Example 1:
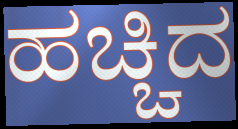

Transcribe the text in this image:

ಹಚ್ಚಿದ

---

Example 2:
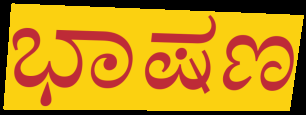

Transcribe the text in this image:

ಭಾಷಣ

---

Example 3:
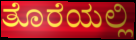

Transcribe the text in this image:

ತೊರೆಯಲ್ಲಿ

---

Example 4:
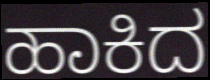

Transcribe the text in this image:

ಹಾಕಿದ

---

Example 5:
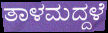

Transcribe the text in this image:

ತಾಳಮದ್ದಳೆ